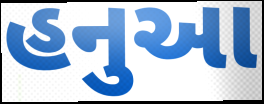
હનુઆ